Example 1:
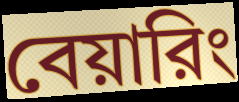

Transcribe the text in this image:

বেয়ারিং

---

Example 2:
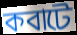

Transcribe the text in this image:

কবাটে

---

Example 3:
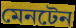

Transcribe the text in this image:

মেনটেন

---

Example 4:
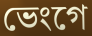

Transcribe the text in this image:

ভেংগে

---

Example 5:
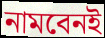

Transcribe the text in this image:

নামবেনই